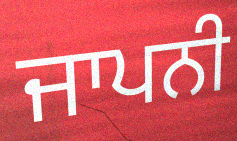
ਜਾਪਨੀ